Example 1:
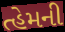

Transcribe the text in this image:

ત્હેમની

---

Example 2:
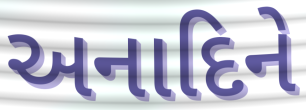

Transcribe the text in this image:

અનાદિને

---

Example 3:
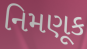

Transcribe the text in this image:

નિમણૂક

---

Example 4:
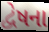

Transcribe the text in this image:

દ્વેષના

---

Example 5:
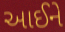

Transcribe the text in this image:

આઈને